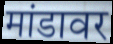
मांडावर